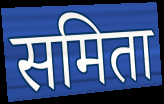
समिता